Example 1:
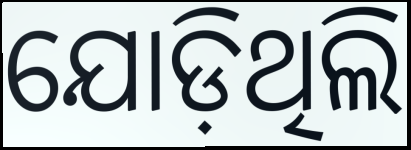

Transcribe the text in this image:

ଯୋଡ଼ିଥିଲି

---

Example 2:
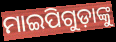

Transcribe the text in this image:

ମାଇପିଗୁଡ଼ାଙ୍କୁ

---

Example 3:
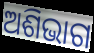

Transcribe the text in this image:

ଅଶିଭାଗ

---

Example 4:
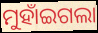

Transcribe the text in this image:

ମୁହାଁଇଗଲା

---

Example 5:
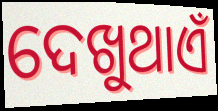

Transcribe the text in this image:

ଦେଖୁଥାଏଁ